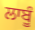
ਲਾਬੂੰ